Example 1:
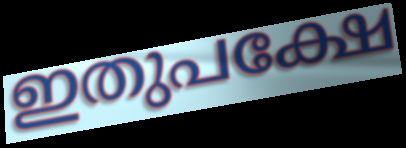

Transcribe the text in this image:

ഇതുപക്ഷേ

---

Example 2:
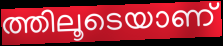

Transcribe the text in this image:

ത്തിലൂടെയാണ്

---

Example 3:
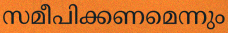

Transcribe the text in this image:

സമീപിക്കണമെന്നും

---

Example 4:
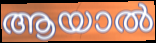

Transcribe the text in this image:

ആയാൽ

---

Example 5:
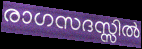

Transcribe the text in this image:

രാഗസദസ്സിൽ